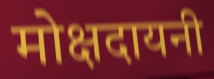
मोक्षदायनी